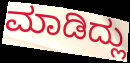
ಮಾಡಿದ್ಲು